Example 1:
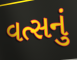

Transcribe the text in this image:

વત્સનું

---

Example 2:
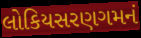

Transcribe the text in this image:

લોકિયસરણગમનં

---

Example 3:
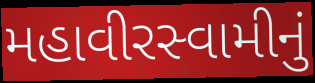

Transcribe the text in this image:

મહાવીરસ્વામીનું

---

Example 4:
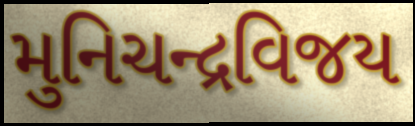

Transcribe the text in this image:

મુનિચન્દ્રવિજય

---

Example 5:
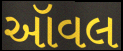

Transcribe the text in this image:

ઑવલ